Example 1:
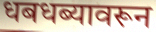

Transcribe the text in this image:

धबधब्यावरून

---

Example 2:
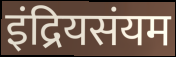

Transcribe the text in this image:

इंद्रियसंयम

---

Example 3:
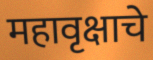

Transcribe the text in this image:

महावृक्षाचे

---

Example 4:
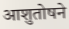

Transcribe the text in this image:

आशुतोषने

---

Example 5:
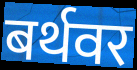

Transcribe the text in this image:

बर्थवर